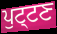
ਪੁਟ੍ਟਣ